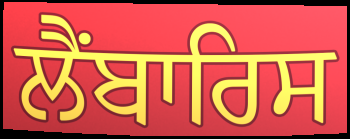
ਲੈਂਬਾਰਿਸ